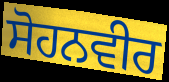
ਸੋਹਨਵੀਰ